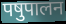
पषुपालन